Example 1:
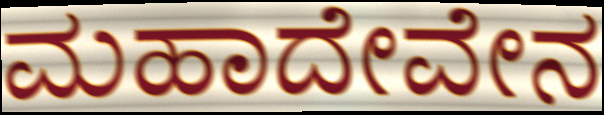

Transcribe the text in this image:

ಮಹಾದೇವೇನ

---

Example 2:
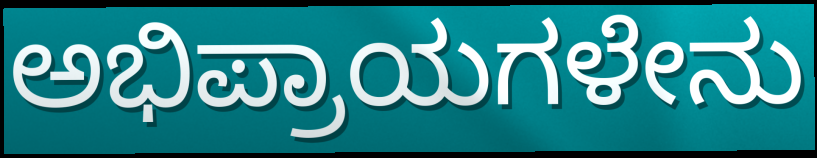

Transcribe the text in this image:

ಅಭಿಪ್ರಾಯಗಳೇನು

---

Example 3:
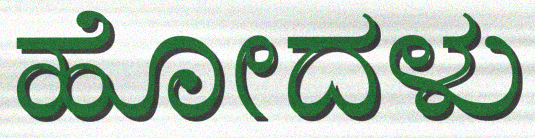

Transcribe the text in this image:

ಹೋದಳು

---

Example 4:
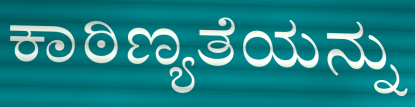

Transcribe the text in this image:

ಕಾಠಿಣ್ಯತೆಯನ್ನು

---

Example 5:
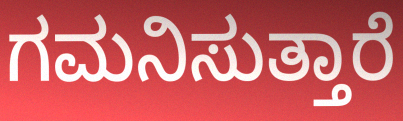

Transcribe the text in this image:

ಗಮನಿಸುತ್ತಾರೆ